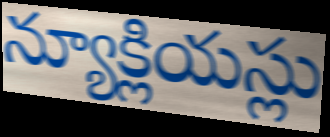
న్యూక్లియస్లు